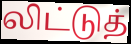
லிட்டுத்